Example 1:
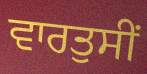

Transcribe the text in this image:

ਵਾਰਤੁਸੀਂ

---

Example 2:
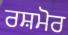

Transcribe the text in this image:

ਰਸ਼ਮੋਰ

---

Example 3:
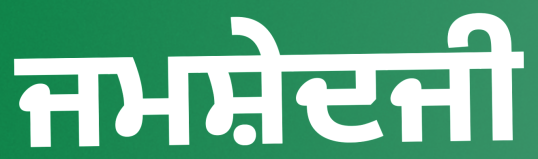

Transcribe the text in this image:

ਜਮਸ਼ੇਦਜੀ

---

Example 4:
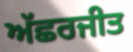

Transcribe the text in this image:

ਅੱਛਰਜੀਤ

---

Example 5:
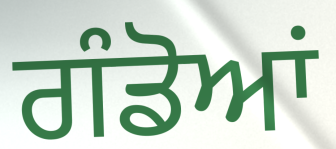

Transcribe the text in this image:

ਗੰਡੋਆਂ